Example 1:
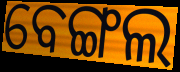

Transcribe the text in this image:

ବେଙ୍ଗଲ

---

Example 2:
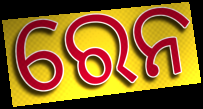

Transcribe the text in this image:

ରେନ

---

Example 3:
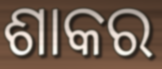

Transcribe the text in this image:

ଶାକର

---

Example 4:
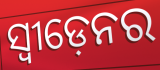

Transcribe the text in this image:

ସ୍ଵୀଡ଼େନର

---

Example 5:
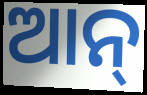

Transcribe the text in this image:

ଆନ୍